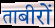
ताबीरों